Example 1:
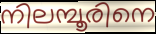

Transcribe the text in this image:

നിലമ്പൂരിനെ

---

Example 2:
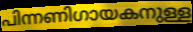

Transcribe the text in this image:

പിന്നണിഗായകനുള്ള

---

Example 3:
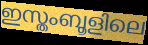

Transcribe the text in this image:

ഇസ്തംബൂളിലെ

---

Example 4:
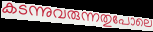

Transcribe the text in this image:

കടന്നുവരുന്നതുപോലെ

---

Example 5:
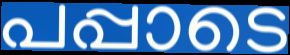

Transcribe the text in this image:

പപ്പാടെ